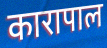
कारापाल